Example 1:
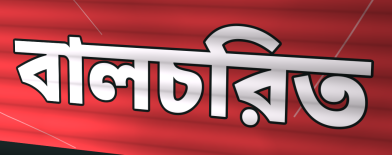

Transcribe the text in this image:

বালচরিত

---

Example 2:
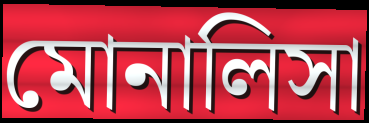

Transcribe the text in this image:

মোনালিসা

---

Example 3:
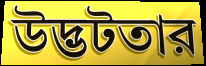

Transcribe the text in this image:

উদ্ভটতার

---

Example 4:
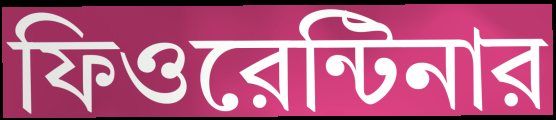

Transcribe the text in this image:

ফিওরেন্টিনার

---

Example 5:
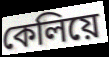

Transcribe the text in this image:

কেলিয়ে